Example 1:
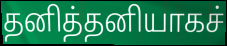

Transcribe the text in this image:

தனித்தனியாகச்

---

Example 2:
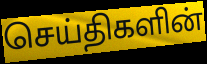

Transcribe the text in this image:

செய்திகளின்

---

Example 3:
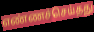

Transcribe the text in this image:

எண்ணச்செய்தது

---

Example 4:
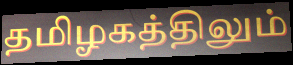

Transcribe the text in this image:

தமிழகத்திலும்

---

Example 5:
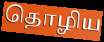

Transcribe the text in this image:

தொழிய